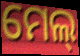
ମେଲ୍